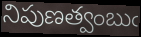
నిపుణత్వంబుఁ